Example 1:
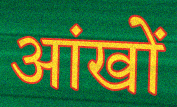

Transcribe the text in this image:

आंखों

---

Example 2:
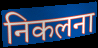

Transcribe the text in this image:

निकलना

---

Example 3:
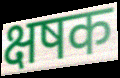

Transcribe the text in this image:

क्षषक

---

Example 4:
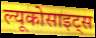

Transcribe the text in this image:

ल्यूकोसाइट्स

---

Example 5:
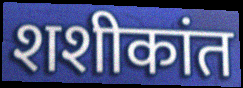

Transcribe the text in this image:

शशीकांत